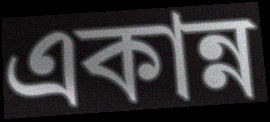
একান্ন